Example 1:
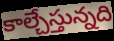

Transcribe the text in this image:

కాల్చేస్తున్నది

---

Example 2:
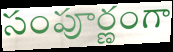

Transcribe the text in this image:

సంపూర్ణంగా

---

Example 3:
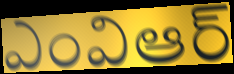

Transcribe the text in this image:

ఎంవిఆర్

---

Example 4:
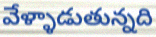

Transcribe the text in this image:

వేళ్ళాడుతున్నది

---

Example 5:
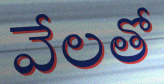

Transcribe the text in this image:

వేలతో